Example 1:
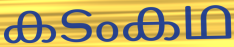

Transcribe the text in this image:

കടംകഥ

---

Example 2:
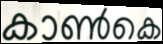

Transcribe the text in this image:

കാൺകെ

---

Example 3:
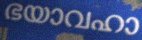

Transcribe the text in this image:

ഭയാവഹാ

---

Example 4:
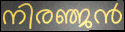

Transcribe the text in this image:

നിരഞ്ജൻ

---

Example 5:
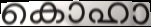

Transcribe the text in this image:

കൊഹാ